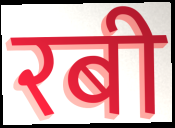
रबी